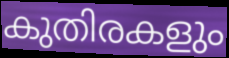
കുതിരകളും